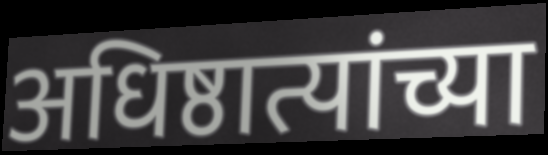
अधिष्ठात्यांच्या